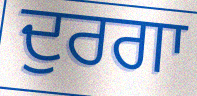
ਦੁਰਗਾ